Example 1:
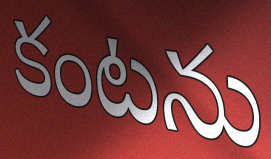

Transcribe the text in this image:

కంటను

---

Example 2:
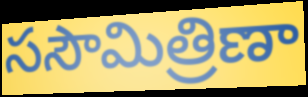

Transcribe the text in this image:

ససౌమిత్రిణా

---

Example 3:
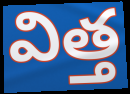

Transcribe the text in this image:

విత్త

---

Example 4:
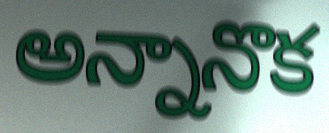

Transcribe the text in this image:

అన్నానొక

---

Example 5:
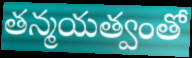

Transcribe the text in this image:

తన్మయత్వంతో